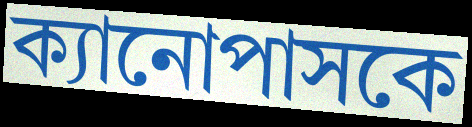
ক্যানোপাসকে